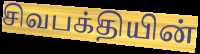
சிவபக்தியின்